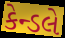
કેન્ડલે